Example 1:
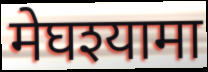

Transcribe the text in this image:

मेघश्यामा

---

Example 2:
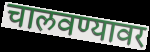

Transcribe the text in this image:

चालवण्यावर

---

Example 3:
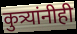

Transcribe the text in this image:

कुत्र्यांनीही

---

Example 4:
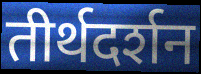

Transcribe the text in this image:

तीर्थदर्शन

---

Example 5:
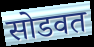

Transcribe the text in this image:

सोडवत